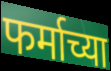
फर्माच्या